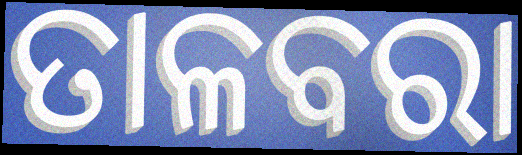
ତାଳବରା